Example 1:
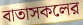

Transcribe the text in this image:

বাতাসকলের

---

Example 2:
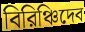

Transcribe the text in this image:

বিরিঞ্চিদেব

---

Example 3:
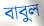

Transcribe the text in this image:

বাবুল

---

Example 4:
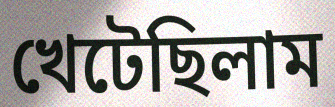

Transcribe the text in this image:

খেটেছিলাম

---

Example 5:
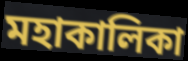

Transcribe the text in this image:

মহাকালিকা